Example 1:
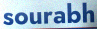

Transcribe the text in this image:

sourabh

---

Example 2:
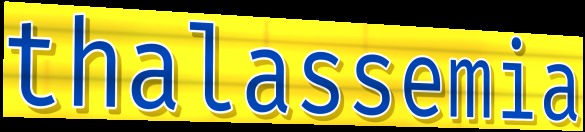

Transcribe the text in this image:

thalassemia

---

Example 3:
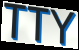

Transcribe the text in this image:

TTY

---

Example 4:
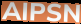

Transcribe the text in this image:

AIPSN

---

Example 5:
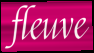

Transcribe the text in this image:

fleuve